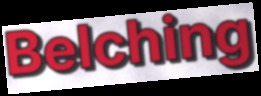
Belching